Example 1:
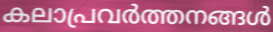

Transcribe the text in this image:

കലാപ്രവർത്തനങ്ങൾ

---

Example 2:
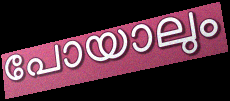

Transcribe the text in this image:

പോയാലും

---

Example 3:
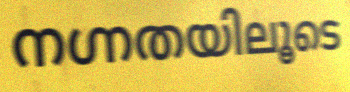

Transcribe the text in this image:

നഗ്നതയിലൂടെ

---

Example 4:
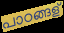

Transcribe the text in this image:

പാഠങ്ങള്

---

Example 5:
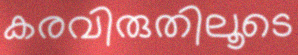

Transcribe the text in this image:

കരവിരുതിലൂടെ